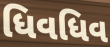
ધિવધિવ